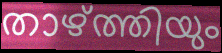
താഴ്ത്തിയും